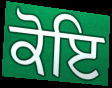
ਕੋਇ